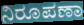
ನಿರೂಪಣಾ